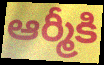
ఆర్మీకి